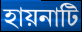
হায়নাটি